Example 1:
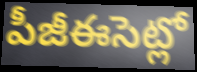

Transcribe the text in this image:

పీజీఈసెట్లో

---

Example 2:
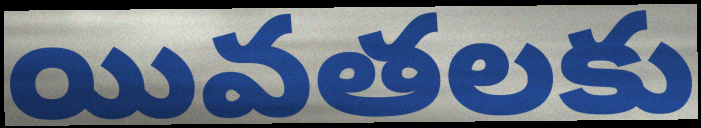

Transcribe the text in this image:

యివతలకు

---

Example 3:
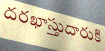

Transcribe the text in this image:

దరఖాస్తుదారుకి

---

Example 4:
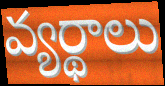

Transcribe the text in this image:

వ్యర్థాలు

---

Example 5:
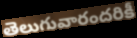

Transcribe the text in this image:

తెలుగువారందరికీ